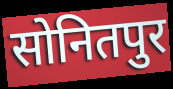
सोनितपुर